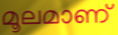
മൂലമാണ്